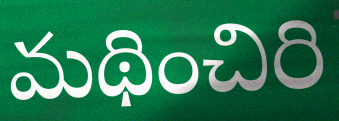
మథించిరి